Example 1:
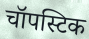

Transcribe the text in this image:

चॉपस्टिक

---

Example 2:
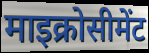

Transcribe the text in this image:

माइक्रोसीमेंट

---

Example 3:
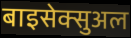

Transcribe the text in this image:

बाइसेक्सुअल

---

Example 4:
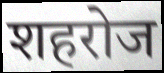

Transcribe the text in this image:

शहरोज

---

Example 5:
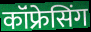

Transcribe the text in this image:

कॉंफ्रेसिंग